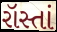
રૉસ્તાં